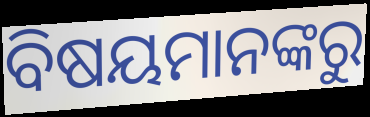
ବିଷୟମାନଙ୍କରୁ